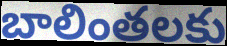
బాలింతలకు